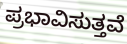
ಪ್ರಭಾವಿಸುತ್ತವೆ